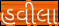
હવીલા